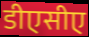
डीएसीए